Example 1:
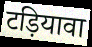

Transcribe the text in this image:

टड़ियावा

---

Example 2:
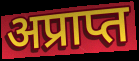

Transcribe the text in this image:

अप्राप्त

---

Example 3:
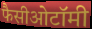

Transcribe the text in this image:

फैसीओटॉमी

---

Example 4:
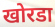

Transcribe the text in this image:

खोरडा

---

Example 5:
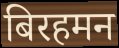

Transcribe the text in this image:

बिरहमन